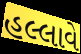
હલ્લાવે